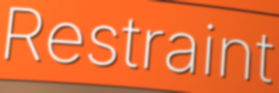
Restraint